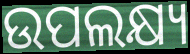
ଉପଲକ୍ଷ୍ୟ